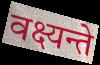
वक्ष्यन्ते